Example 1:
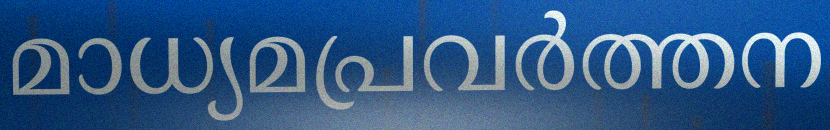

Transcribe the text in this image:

മാധ്യമപ്രവർത്തന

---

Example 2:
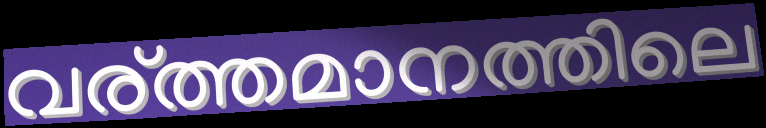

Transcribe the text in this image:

വര്ത്തമാനത്തിലെ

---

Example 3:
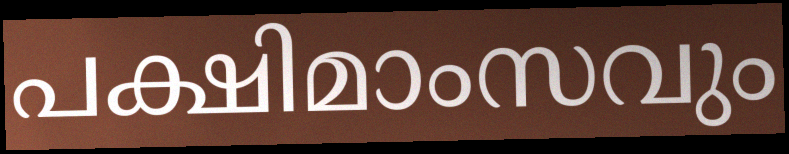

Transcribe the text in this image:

പക്ഷിമാംസവും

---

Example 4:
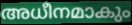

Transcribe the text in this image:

അധീനമാകും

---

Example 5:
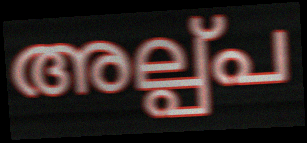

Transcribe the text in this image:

അല്പ്പ